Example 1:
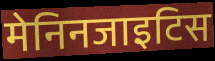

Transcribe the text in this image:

मेनिनजाइटिस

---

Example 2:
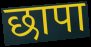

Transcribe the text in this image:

छापा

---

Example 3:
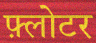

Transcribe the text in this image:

फ़्लोटर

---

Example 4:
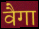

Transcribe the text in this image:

वैगा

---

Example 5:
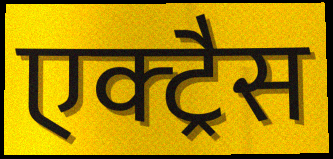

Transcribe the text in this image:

एक्ट्रैस